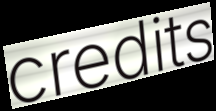
credits